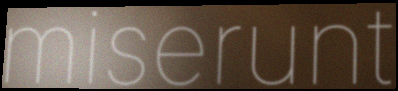
miserunt